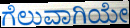
ಗೆಲುವಾಗಿಯೇ